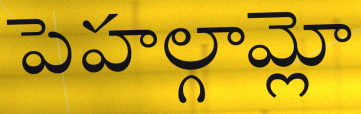
పెహల్గామ్లో